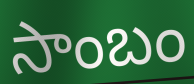
సాంబం